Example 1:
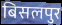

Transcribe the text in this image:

बिसलपुर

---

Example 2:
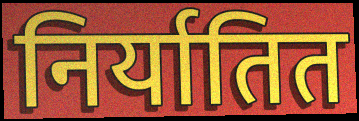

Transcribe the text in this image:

निर्यातित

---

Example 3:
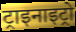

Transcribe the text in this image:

ट्राइनाइट्रो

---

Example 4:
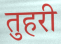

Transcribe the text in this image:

तुहरी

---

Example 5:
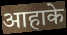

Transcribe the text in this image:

आहाके